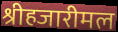
श्रीहजारीमल